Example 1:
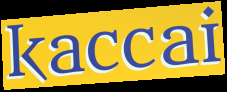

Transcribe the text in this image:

kaccai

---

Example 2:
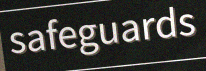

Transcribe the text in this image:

safeguards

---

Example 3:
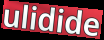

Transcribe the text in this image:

ulidide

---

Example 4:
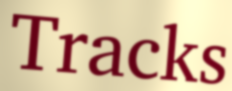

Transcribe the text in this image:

Tracks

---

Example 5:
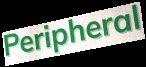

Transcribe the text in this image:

Peripheral